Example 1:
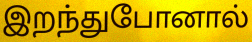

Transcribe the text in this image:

இறந்துபோனால்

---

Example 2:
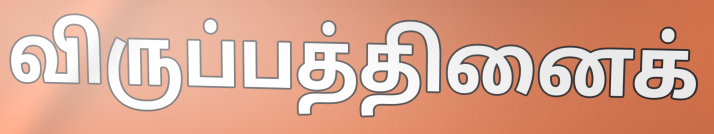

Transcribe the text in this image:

விருப்பத்தினைக்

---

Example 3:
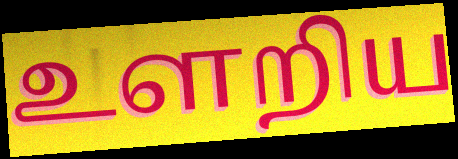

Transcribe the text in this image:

உளறிய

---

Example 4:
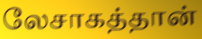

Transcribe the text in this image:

லேசாகத்தான்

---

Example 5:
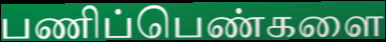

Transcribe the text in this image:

பணிப்பெண்களை